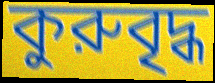
কুরুবৃদ্ধ